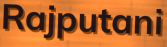
Rajputani